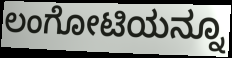
ಲಂಗೋಟಿಯನ್ನೂ